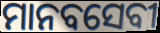
ମାନବସେବୀ